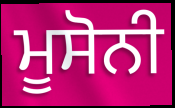
ਮੂਸੋਨੀ